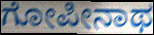
ಗೋಪೀನಾಥ